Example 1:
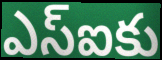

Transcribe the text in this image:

ఎస్ఐకు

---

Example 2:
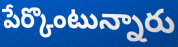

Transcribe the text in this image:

పేర్కొంటున్నారు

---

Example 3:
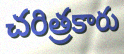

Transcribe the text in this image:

చరిత్రకారు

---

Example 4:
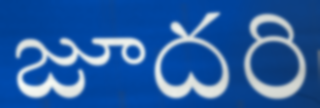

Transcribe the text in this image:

జూదరి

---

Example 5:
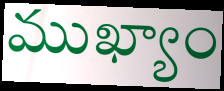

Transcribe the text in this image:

ముఖ్యాం